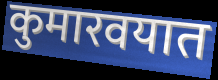
कुमारवयात